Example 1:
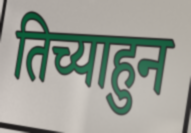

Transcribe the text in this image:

तिच्याहुन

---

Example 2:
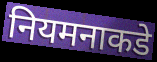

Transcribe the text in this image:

नियमनाकडे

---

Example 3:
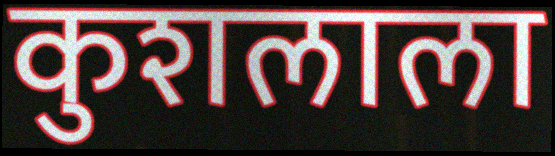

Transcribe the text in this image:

कुशलाला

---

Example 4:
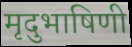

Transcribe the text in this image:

मृदुभाषिणी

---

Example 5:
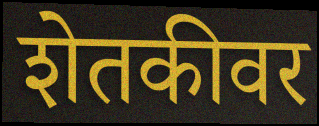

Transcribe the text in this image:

शेतकीवर